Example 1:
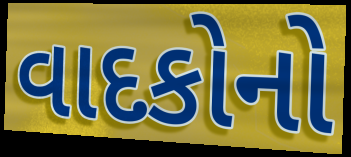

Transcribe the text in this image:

વાદકોનો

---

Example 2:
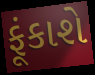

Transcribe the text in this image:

ફૂંકાશે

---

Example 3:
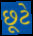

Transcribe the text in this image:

છૂટે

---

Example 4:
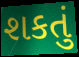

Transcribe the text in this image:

શકતું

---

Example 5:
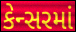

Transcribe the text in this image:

કેન્સરમાં